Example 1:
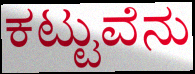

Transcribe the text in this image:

ಕಟ್ಟುವೆನು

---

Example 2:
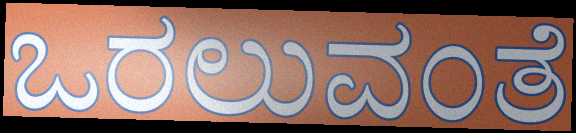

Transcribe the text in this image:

ಒರಲುವಂತೆ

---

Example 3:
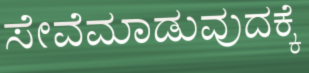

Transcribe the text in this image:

ಸೇವೆಮಾಡುವುದಕ್ಕೆ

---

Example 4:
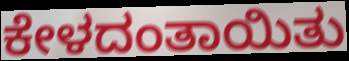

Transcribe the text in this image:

ಕೇಳದಂತಾಯಿತು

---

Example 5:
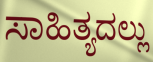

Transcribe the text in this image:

ಸಾಹಿತ್ಯದಲ್ಲು